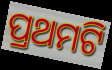
ପ୍ରଥମଟି